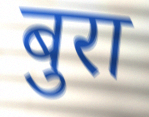
बुरा